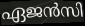
ഏജൻസി